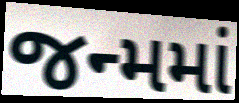
જન્મમાં